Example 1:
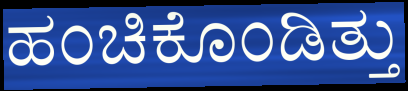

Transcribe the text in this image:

ಹಂಚಿಕೊಂಡಿತ್ತು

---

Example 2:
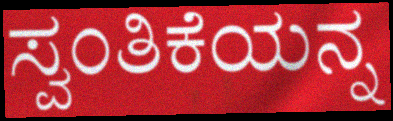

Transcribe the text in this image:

ಸ್ವಂತಿಕೆಯನ್ನ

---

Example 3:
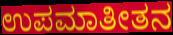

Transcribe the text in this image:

ಉಪಮಾತೀತನ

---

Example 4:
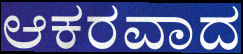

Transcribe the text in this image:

ಆಕರವಾದ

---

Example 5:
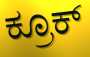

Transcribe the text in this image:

ಕ್ರೂಕ್